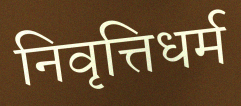
निवृत्तिधर्म